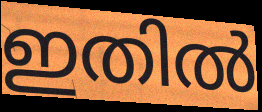
ഇതിൽ